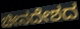
ಚೀನದೇಶದ